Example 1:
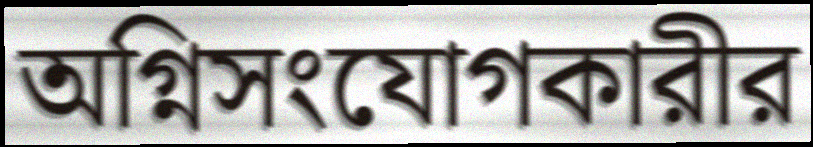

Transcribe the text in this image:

অগ্নিসংযোগকারীর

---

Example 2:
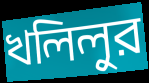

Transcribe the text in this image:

খলিলুর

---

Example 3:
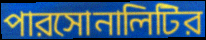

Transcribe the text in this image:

পারসোনালিটির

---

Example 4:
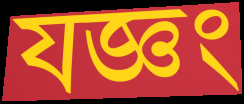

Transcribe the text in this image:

যজ্ঞং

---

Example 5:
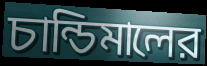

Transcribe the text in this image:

চান্ডিমালের